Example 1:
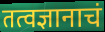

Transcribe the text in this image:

तत्वज्ञानाचं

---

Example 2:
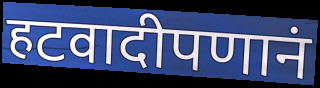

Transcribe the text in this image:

हटवादीपणानं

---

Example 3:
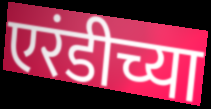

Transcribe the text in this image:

एरंडीच्या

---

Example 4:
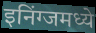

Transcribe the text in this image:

इनिंग्जमध्ये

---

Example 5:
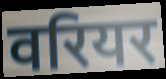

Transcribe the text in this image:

वरियर